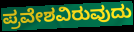
ಪ್ರವೇಶವಿರುವುದು